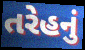
તરેહનું